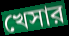
খেসার